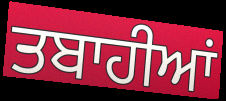
ਤਬਾਹੀਆਂ